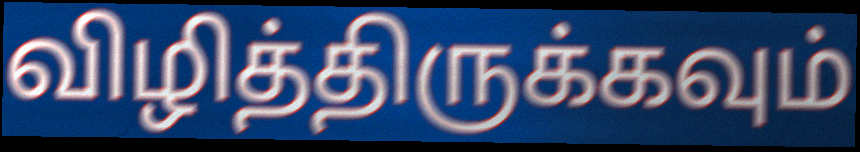
விழித்திருக்கவும்